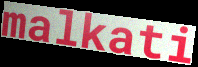
malkati